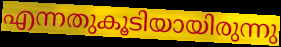
എന്നതുകൂടിയായിരുന്നു